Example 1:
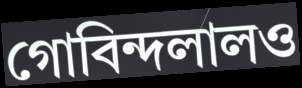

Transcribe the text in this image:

গোবিন্দলালও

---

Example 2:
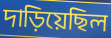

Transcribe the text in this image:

দাড়িয়েছিল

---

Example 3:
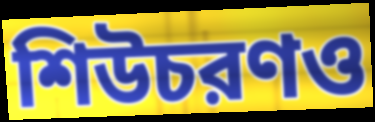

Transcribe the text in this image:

শিউচরণও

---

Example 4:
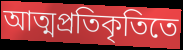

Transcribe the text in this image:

আত্মপ্রতিকৃতিতে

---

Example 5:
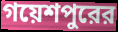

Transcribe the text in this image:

গয়েশপুরের